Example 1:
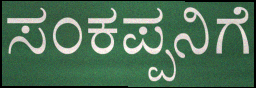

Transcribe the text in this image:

ಸಂಕಪ್ಪನಿಗೆ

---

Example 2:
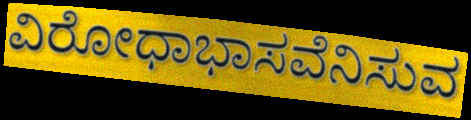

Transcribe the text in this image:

ವಿರೋಧಾಭಾಸವೆನಿಸುವ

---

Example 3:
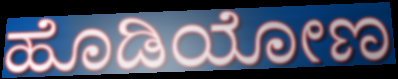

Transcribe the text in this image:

ಹೊಡಿಯೋಣ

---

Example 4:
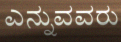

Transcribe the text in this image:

ಎನ್ನುವವರು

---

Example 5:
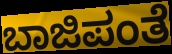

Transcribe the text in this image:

ಬಾಜಿಪಂತೆ